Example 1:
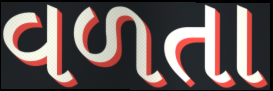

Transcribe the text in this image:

વળતા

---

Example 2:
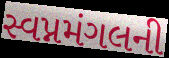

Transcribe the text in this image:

સ્વપ્નમંગલની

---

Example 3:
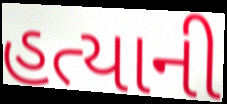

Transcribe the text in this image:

હત્યાની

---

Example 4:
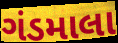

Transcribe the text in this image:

ગંડમાલા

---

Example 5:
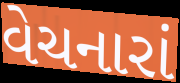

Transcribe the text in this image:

વેચનારાં